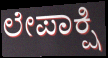
ಲೇಪಾಕ್ಷಿ